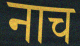
नाच